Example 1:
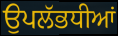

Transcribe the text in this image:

ਉਪਲੱਭਧੀਆਂ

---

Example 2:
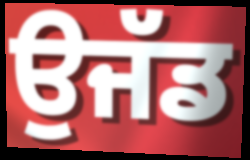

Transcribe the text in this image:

ਉਜੱਡ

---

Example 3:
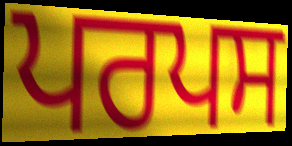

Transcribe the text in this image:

ਪਰਪਸ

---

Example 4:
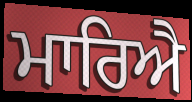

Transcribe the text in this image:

ਮਾਰਿਐ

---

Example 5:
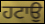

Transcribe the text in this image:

ਹਟਾਉ